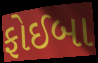
ફોઈબા